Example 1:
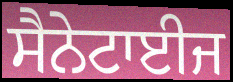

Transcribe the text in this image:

ਸੈਨੇਟਾਈਜ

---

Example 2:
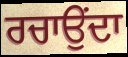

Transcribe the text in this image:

ਰਚਾਉਂਦਾ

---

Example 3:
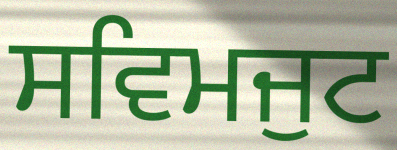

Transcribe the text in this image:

ਸਵਿਮਜੁਟ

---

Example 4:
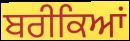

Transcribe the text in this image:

ਬਰੀਕਿਆਂ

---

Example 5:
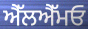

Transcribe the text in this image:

ਐੱਲਐੱਮਓ